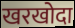
खरखोदा